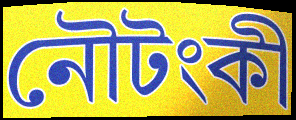
নৌটংকী